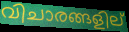
വിചാരങ്ങളില്